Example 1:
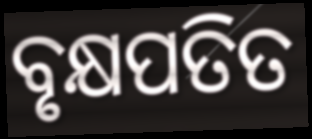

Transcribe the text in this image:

ବୃକ୍ଷପତିତ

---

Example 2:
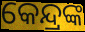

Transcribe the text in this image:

କେନ୍ଦ୍ରଙ୍କ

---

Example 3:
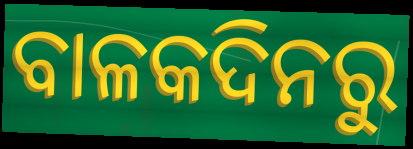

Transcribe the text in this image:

ବାଳକଦିନରୁ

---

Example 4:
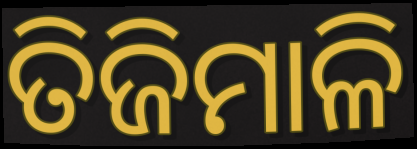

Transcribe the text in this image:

ତିଜିମାଳି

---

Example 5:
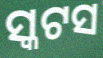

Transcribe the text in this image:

ସ୍କଟସ